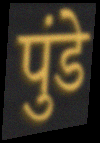
पुंडे